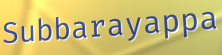
Subbarayappa